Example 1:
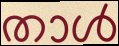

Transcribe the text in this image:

താൾ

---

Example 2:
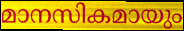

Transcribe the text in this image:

മാനസികമായും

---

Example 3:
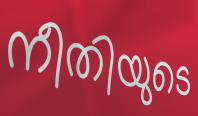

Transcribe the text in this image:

നീതിയുടെ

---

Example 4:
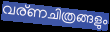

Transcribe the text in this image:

വര്ണചിത്രങ്ങളും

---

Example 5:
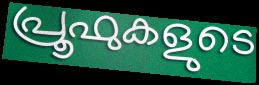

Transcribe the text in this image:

പ്രൂഫുകളുടെ